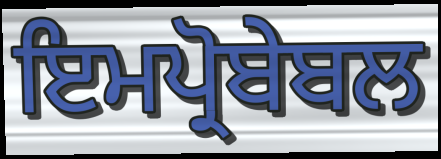
ਇਮਪ੍ਰੋਬੇਬਲ